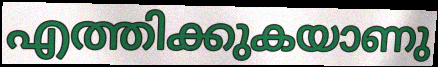
എത്തിക്കുകയാണു